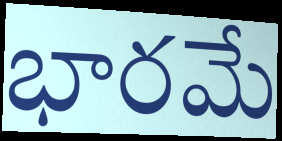
భారమే